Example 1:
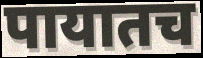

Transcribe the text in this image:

पायातच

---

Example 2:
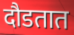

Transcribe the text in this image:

दौडतात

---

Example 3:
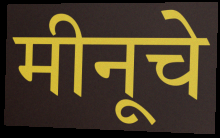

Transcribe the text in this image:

मीनूचे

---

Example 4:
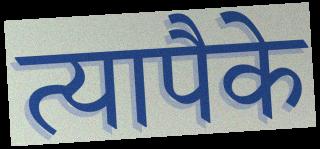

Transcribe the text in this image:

त्यापैके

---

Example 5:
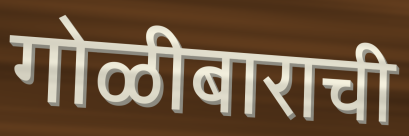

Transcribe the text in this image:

गोळीबाराची